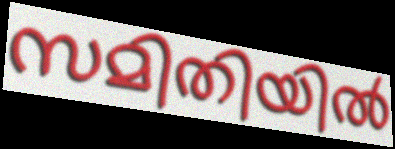
സമിതിയിൽ